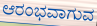
ಆರಂಭವಾಗುವ